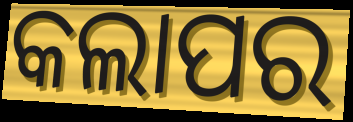
କଲାପର